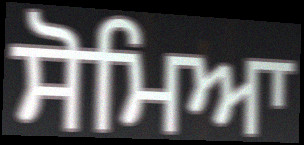
ਸੋਮਿਆ